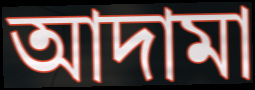
আদামা